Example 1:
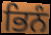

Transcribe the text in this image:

ਭਿਨੰ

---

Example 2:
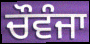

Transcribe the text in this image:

ਚੌਵੰਜਾ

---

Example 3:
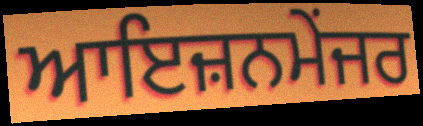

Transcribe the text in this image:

ਆਇਜ਼ਨਮੇਂਜਰ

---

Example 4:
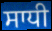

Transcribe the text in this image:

ਸਾਧੀ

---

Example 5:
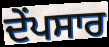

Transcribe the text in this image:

ਦੇਂਪਸਾਰ